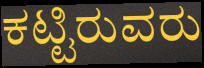
ಕಟ್ಟಿರುವರು